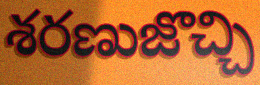
శరణుజొచ్చి